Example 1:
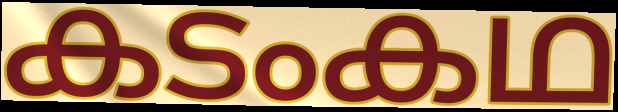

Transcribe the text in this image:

കടംകഥ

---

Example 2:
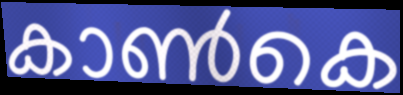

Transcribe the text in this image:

കാൺകെ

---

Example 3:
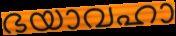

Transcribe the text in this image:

ഭയാവഹാ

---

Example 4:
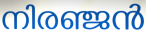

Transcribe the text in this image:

നിരഞ്ജൻ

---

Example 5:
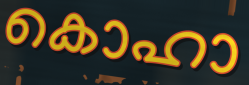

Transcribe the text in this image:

കൊഹാ